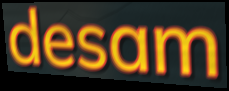
desam